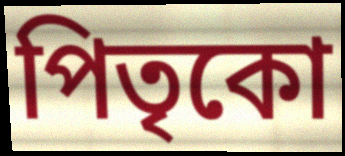
পিতৃকো